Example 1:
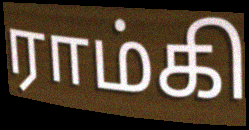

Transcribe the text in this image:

ராம்கி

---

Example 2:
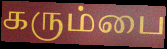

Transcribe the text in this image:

கரும்பை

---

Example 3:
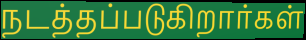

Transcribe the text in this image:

நடத்தப்படுகிறார்கள்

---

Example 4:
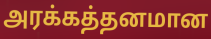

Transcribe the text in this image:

அரக்கத்தனமான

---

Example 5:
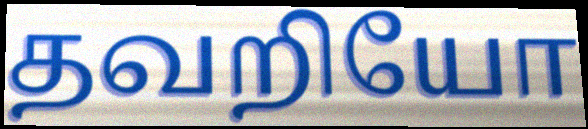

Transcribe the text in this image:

தவறியோ